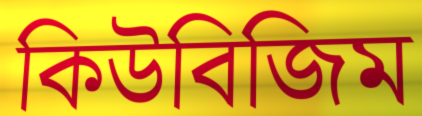
কিউবিজিম